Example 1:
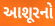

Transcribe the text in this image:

આશૂરનો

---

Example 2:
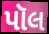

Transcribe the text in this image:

પૉલ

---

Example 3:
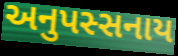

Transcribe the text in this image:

અનુપસ્સનાય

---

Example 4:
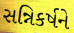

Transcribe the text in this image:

સન્નિકર્ષને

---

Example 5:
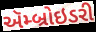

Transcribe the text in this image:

ઍમ્બ્રોઇડરી